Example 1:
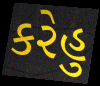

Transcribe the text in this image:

કરેહુ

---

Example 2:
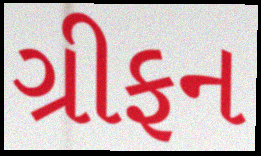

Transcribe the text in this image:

ગ્રીફન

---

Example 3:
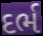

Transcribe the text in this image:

દર્ભ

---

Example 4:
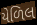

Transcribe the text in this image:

યેળિલ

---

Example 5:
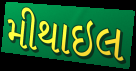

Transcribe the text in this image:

મીથાઇલ